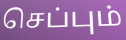
செப்பும்